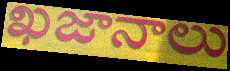
ఖజానాలు